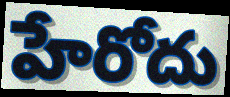
హేరోదు